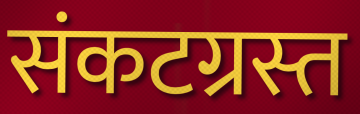
संकटग्रस्‍त